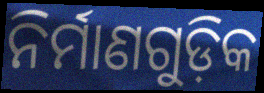
ନିର୍ମାଣଗୁଡ଼ିକ